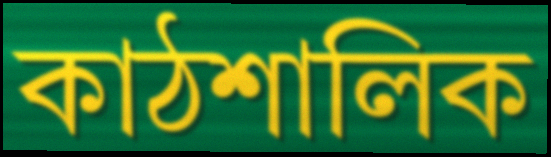
কাঠশালিক